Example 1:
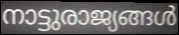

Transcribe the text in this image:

നാട്ടുരാജ്യങ്ങൾ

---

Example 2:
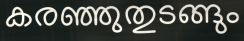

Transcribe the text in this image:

കരഞ്ഞുതുടങ്ങും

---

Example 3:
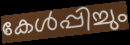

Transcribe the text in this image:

കേൾപ്പിച്ചും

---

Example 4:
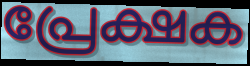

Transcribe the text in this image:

പ്രേക്ഷക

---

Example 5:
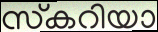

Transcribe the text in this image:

സ്‌കറിയാ